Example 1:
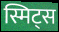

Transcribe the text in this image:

स्मिट्स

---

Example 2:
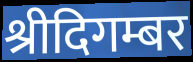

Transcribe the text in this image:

श्रीदिगम्बर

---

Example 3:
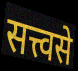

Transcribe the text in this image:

सत्त्वसे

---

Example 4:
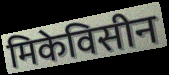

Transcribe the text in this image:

मिकेविसीन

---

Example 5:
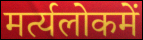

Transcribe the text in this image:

मर्त्यलोकमें